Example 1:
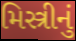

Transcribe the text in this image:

મિસ્ત્રીનું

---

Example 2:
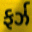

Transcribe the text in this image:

ફર્ઝ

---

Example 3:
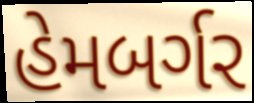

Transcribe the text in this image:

હેમબર્ગર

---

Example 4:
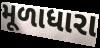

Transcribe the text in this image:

મૂળાધારા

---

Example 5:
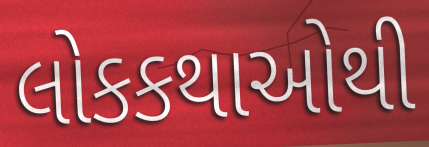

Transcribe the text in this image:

લોકકથાઓથી